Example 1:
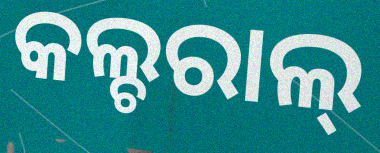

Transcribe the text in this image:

କଲ୍ଚରାଲ୍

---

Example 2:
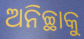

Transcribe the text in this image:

ଅନିଚ୍ଛାକୁ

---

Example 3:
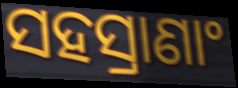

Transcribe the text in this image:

ସହସ୍ରାଣାଂ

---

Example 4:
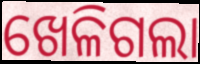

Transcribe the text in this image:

ଖେଳିଗଲା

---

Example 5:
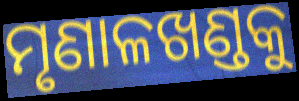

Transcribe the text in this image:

ମୃଣାଳଖଣ୍ଡକୁ